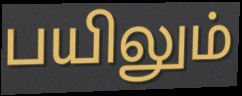
பயிலும்